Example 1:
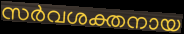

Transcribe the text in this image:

സർവശക്തനായ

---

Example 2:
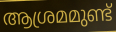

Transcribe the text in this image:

ആശ്രമമുണ്ട്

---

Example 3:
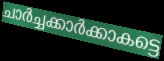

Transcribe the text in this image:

ചാർച്ചക്കാർക്കാകട്ടെ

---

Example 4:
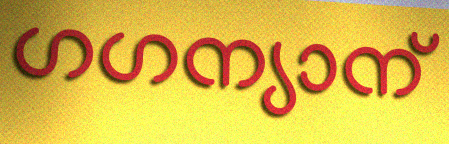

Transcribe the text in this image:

ഗഗന്യാന്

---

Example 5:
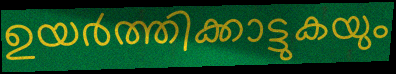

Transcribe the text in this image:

ഉയർത്തിക്കാട്ടുകയും